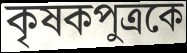
কৃষকপুত্রকে